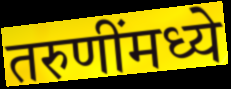
तरुणींमध्ये